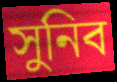
সুনিব